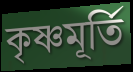
কৃষ্ণমূর্তি